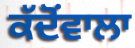
ਕੱਦੋਂਵਾਲਾ